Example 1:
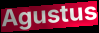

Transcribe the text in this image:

Agustus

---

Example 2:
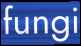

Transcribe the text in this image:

fungi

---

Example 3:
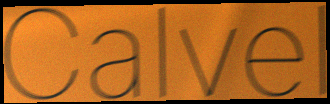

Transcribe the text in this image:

Calvel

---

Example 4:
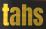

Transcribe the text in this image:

tahs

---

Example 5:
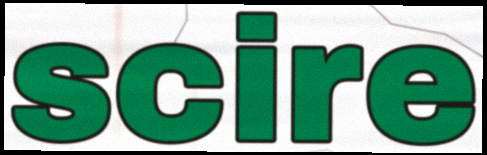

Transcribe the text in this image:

scire